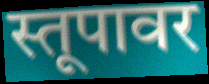
स्तूपावर